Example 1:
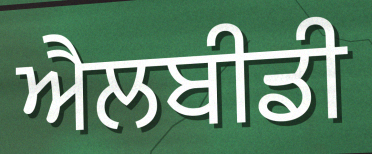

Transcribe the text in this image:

ਐਲਬੀਡੀ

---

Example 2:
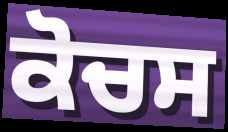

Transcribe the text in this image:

ਕੋਚਸ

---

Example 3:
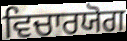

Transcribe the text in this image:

ਵਿਚਾਰਯੋਗ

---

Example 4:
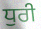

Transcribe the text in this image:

ਧੁਰੀ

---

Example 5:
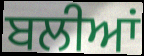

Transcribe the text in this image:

ਬਲੀਆਂ